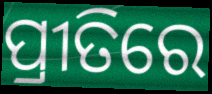
ପ୍ରୀତିରେ